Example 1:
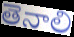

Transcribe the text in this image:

తెనాలి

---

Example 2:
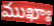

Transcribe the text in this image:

ముఖాః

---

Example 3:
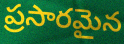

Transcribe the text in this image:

ప్రసారమైన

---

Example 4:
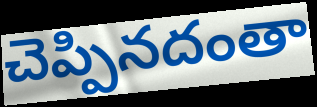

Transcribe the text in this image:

చెప్పినదంతా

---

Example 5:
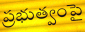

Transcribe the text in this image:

ప్రభుత్వంపై